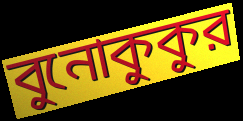
বুনোকুকুর